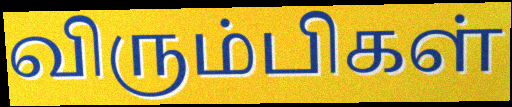
விரும்பிகள்